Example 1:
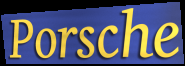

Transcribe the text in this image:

Porsche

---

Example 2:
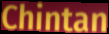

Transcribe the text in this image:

Chintan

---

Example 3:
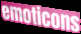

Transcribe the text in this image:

emoticons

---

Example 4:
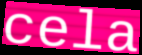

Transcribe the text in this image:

cela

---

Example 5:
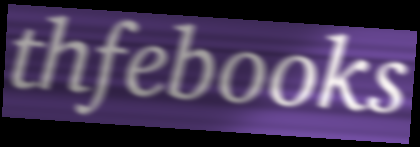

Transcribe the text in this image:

thfebooks